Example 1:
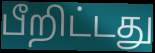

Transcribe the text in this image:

பீறிட்டது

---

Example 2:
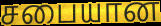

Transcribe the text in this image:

சபையான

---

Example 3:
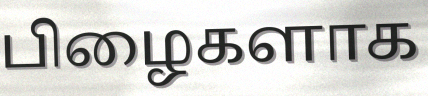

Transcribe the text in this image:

பிழைகளாக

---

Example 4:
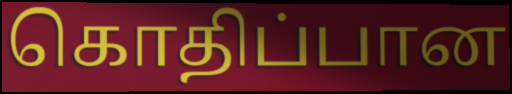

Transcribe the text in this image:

கொதிப்பான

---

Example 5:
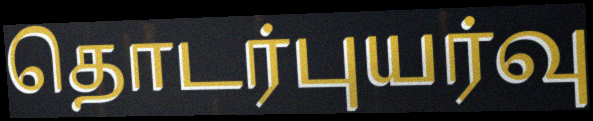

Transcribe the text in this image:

தொடர்புயர்வு